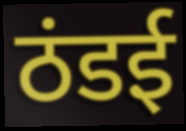
ठंडई